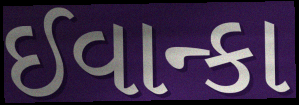
ઈવાન્કા